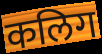
कलिग